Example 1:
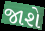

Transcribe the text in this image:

જાશે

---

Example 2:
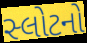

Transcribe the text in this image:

સ્લોટનો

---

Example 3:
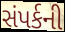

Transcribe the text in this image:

સંપર્કની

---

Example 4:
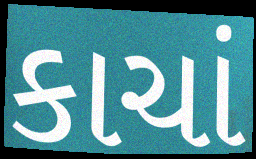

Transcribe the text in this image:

કાચાં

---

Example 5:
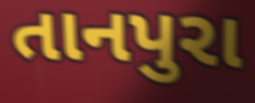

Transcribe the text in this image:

તાનપુરા